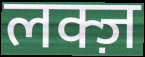
लक्ज़